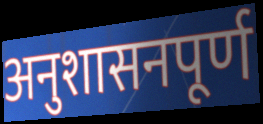
अनुशासनपूर्ण